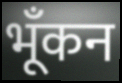
भूँकन